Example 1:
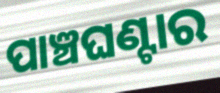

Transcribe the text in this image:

ପାଞ୍ଚଘଣ୍ଟାର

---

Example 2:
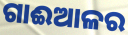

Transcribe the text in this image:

ଗାଈଆଳର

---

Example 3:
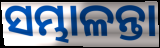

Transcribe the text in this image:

ସମ୍ଭାଳନ୍ତା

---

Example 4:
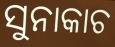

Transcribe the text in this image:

ସୁନାକାଚ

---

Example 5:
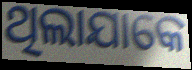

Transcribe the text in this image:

ଥିଲାଯାକେ